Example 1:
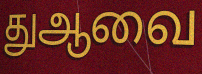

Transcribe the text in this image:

துஆவை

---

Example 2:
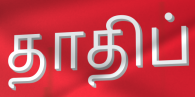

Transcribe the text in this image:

தாதிப்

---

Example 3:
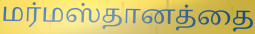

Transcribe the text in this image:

மர்மஸ்தானத்தை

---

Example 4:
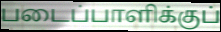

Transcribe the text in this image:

படைப்பாளிக்குப்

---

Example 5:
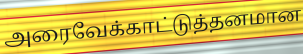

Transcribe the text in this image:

அரைவேக்காட்டுத்தனமான